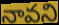
నావని